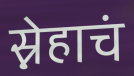
स्नेहाचं